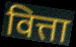
वित्ता